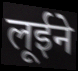
लूईने